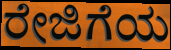
ರೇಜಿಗೆಯ